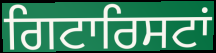
ਗਿਟਾਰਿਸਟਾਂ